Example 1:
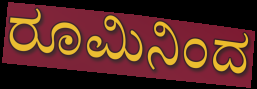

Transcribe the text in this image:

ರೂಮಿನಿಂದ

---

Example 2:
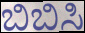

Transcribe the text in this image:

ಬಿಬಿಸಿ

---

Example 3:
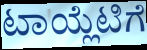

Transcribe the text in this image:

ಟಾಯ್ಲೆಟಿಗೆ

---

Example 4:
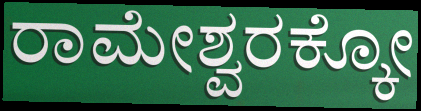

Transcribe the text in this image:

ರಾಮೇಶ್ವರಕ್ಕೋ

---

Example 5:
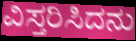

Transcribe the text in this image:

ವಿಸ್ತರಿಸಿದನು